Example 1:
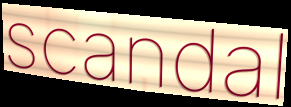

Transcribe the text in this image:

scandal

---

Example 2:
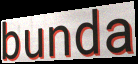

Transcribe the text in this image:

bunda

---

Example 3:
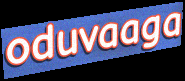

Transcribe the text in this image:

oduvaaga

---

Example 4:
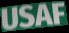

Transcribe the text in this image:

USAF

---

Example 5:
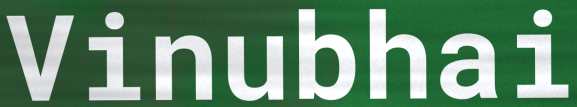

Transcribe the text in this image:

Vinubhai